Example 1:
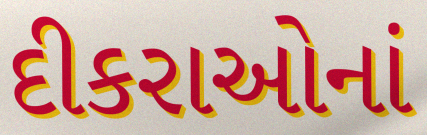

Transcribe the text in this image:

દીકરાઓનાં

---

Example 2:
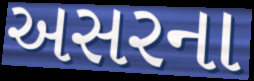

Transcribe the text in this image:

અસરના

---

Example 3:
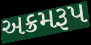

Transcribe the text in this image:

અક્રમરૂપ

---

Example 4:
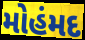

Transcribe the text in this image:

મોહંમદ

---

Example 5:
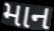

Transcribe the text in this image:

માન